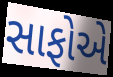
સાફોએ